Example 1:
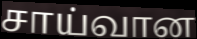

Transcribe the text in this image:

சாய்வான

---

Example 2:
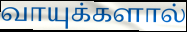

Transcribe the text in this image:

வாயுக்களால்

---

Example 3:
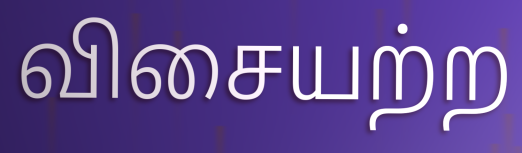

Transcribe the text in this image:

விசையற்ற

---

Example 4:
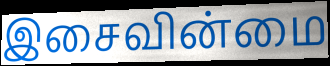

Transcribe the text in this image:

இசைவின்மை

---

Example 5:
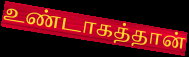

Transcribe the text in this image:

உண்டாகத்தான்